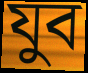
যুব